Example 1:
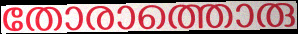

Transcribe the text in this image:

തോരാത്തൊരു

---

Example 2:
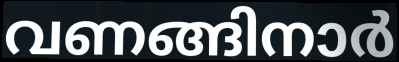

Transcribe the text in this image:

വണങ്ങിനാർ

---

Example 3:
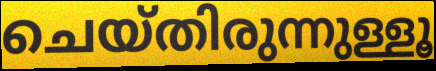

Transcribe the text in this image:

ചെയ്തിരുന്നുള്ളൂ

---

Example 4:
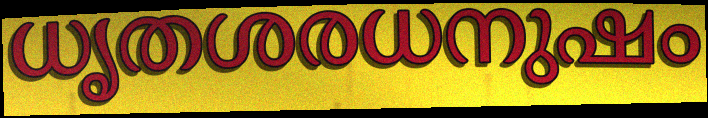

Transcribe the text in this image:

ധൃതശരധനുഷം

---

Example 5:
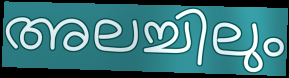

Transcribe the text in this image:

അലച്ചിലും